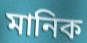
মানিক